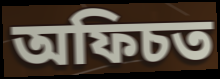
অফিচত